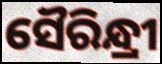
ସୈରିନ୍ଧ୍ରୀ